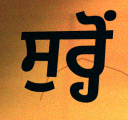
ਸੁਰ੍ਹੋਂ